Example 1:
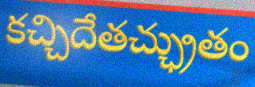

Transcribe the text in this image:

కచ్చిదేతచ్ఛ్రుతం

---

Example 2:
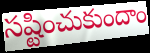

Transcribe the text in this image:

సష్టించుకుందాం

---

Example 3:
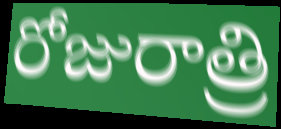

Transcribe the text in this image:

రోజురాత్రి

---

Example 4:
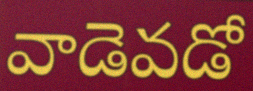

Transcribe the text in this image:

వాడెవడో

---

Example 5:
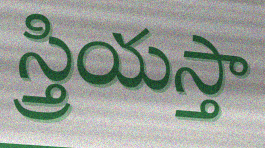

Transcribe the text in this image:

స్త్రియస్తా